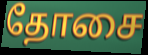
தோசை